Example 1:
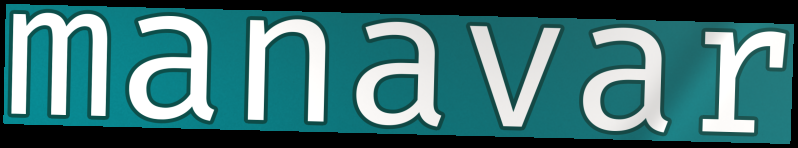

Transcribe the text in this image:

manavar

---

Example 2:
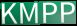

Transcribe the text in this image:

KMPP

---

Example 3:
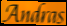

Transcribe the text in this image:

Andras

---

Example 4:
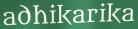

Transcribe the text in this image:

adhikarika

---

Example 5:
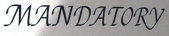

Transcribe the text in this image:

MANDATORY